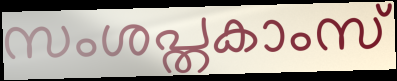
സംശപ്തകാംസ്